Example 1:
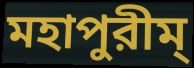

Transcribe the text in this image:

মহাপুরীম্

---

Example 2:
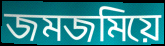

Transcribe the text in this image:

জমজমিয়ে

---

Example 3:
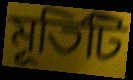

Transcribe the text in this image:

মূর্তিটি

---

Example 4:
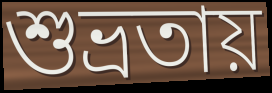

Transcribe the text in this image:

শুভ্রতায়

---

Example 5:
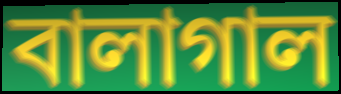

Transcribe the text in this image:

বালাগাল